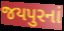
જયપુરનાં